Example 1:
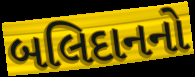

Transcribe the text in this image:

બલિદાનનો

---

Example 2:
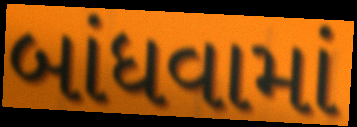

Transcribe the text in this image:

બાંધવામાં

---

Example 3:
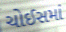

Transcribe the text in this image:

ચોઈસમાં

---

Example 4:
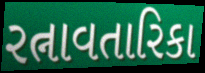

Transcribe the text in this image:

રત્નાવતારિકા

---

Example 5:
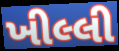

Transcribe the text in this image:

ખીલ્લી